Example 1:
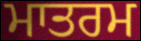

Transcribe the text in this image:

ਮਾਤਰਮ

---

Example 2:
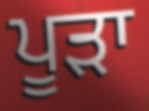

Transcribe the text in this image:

ਪੂੜਾ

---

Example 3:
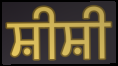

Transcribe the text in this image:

ਸ਼ੀਸ਼ੀ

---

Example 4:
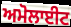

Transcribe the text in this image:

ਅਮੋਲਾਈਟ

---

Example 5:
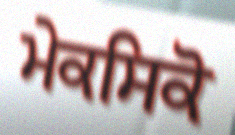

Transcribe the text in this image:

ਮੇਕਸਿਕੋ